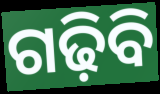
ଗଢ଼ିବି